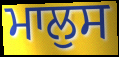
ਮਾਲੁਸ